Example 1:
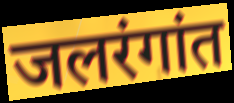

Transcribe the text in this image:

जलरंगांत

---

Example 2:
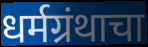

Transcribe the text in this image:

धर्मग्रंथाचा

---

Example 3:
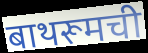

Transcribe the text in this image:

बाथरूमची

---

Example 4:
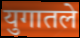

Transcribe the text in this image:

युगातले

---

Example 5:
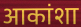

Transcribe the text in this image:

आकांशा